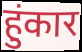
हुंकार